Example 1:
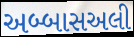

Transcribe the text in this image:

અબ્બાસઅલી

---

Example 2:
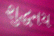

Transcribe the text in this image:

શુદ્ધનય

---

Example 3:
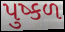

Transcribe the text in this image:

પુષ્કળ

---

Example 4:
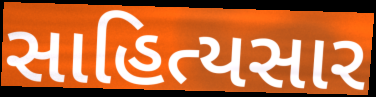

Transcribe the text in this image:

સાહિત્યસાર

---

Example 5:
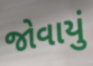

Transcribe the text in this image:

જોવાયું